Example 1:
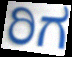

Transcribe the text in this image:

ರಿಗ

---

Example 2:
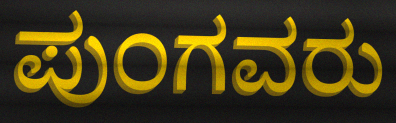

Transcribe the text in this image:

ಪುಂಗವರು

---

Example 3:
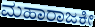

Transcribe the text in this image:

ಮಹಾರಾಜಕೀ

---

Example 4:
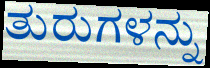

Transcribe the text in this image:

ತುರುಗಳನ್ನು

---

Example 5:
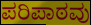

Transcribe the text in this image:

ಪರಿಪಾಠವು